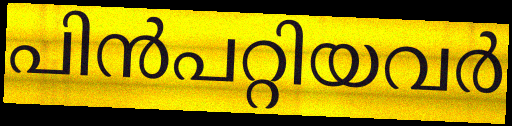
പിൻപറ്റിയവർ